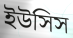
ইউসিস